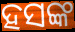
ହସଙ୍କ